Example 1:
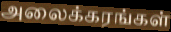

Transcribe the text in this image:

அலைக்கரங்கள்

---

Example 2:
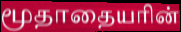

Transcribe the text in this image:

மூதாதையரின்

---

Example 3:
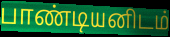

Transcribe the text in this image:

பாண்டியனிடம்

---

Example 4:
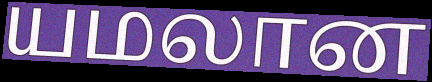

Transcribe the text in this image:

யமலான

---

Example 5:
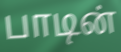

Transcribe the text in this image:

பாடின்